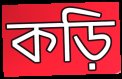
কড়ি